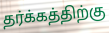
தர்க்கத்திற்கு